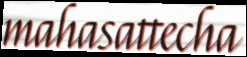
mahasattecha